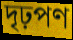
দৃঢ়পণ